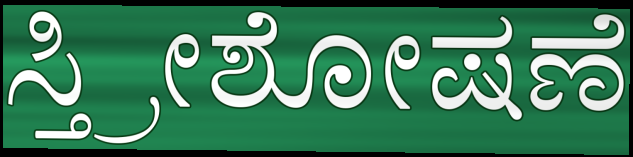
ಸ್ತ್ರೀಶೋಷಣೆ